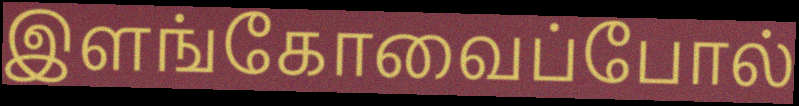
இளங்கோவைப்போல்